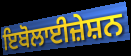
ਇਬੋਲਾਈਜ਼ੇਸ਼ਨ